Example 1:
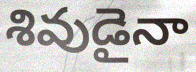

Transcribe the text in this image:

శివుడైనా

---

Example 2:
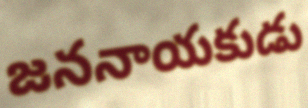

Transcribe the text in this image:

జననాయకుడు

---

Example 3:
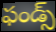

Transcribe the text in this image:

ఫండ్స్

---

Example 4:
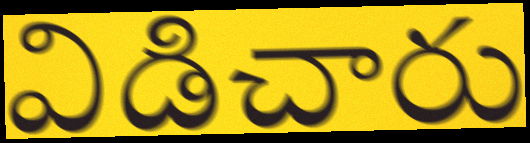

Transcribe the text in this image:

విడిచారు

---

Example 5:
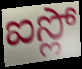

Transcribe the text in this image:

ఐస్లో